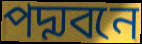
পদ্মবনে